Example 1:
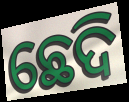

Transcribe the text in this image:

ଛେଦି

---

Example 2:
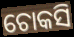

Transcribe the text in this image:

ଚୋକସି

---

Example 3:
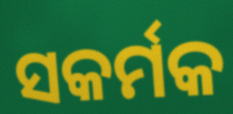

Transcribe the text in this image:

ସକର୍ମକ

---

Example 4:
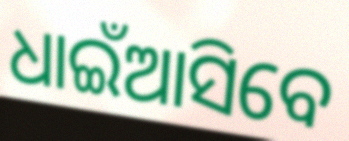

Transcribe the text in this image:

ଧାଇଁଆସିବେ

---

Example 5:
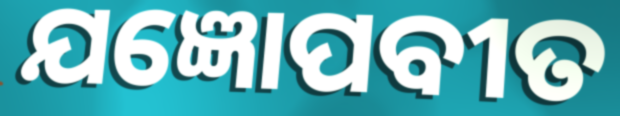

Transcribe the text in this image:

ଯଜ୍ଞୋପବୀତ